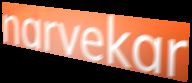
narvekar